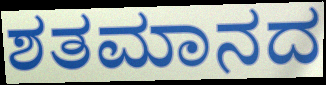
ಶತಮಾನದ